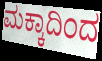
ಮಕ್ಕಾದಿಂದ